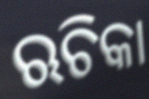
ଋଚିକା